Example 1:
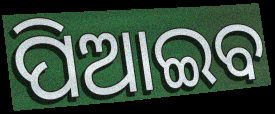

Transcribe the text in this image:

ପିଆଇବ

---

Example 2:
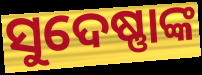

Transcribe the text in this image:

ସୁଦେଷ୍ଣାଙ୍କ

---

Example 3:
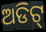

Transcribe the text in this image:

ଅଡିଟ୍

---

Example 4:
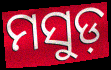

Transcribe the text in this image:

ମସୁଡ଼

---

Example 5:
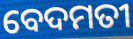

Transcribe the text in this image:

ବେଦମତୀ